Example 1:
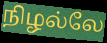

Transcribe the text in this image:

நிழல்லே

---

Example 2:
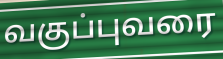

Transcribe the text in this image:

வகுப்புவரை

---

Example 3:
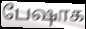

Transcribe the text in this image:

பேஷாக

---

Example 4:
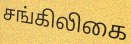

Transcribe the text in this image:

சங்கிலிகை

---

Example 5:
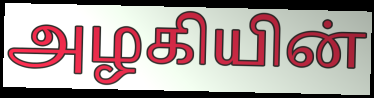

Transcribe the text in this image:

அழகியின்